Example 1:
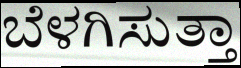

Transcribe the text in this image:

ಬೆಳಗಿಸುತ್ತಾ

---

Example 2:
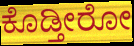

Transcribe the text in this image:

ಕೊಡ್ತೀರೋ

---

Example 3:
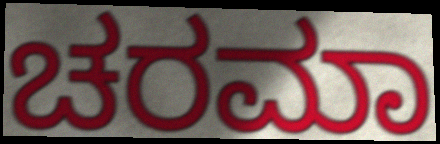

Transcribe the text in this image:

ಚರಮಾ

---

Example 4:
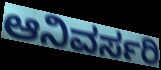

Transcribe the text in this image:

ಆನಿವರ್ಸರಿ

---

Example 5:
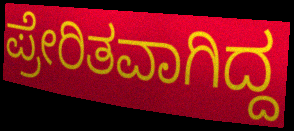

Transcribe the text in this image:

ಪ್ರೇರಿತವಾಗಿದ್ದ